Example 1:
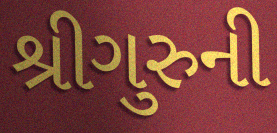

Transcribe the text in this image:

શ્રીગુરુની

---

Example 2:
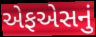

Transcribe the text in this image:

એફએસનું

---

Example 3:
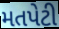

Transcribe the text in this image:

મતપેટી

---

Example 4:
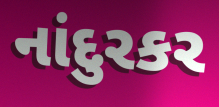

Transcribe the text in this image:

નાંદુરકર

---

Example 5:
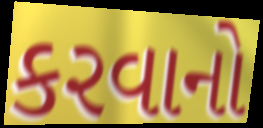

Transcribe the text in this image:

કરવાનો